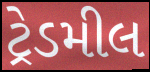
ટ્રેડમીલ